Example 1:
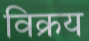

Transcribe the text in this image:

विक्रय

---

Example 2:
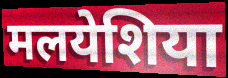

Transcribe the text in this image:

मलयेशिया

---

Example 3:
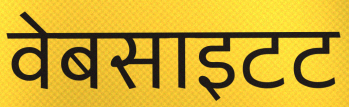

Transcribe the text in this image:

वेबसाइटट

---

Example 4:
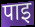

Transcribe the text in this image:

पाइ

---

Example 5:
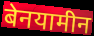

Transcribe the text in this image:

बेनयामीन